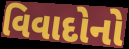
વિવાદોનો